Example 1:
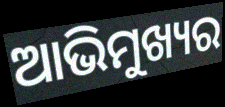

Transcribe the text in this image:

ଆଭିମୁଖ୍ୟର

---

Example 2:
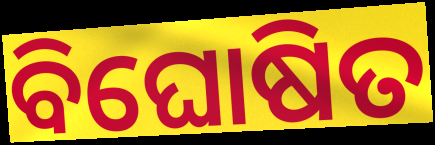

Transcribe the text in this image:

ବିଘୋଷିତ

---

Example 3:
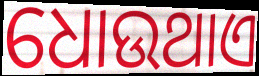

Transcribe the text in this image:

ଧୋଉଥାଏ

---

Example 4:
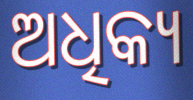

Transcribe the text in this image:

ଅଧିକ୍ୟ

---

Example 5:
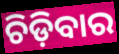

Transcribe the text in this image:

ଚିଡ଼ିବାର